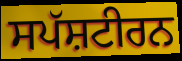
ਸਪੱਸ਼ਟੀਰਨ